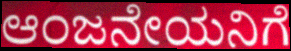
ಆಂಜನೇಯನಿಗೆ